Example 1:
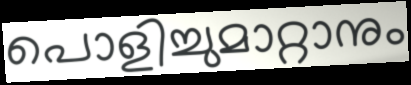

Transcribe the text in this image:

പൊളിച്ചുമാറ്റാനും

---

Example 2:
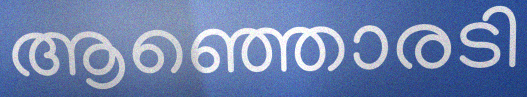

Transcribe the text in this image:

ആഞ്ഞൊരടി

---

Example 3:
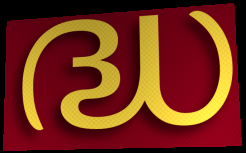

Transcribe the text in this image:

ദ്ധ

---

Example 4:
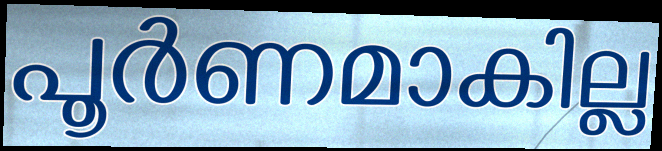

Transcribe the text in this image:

പൂർണമാകില്ല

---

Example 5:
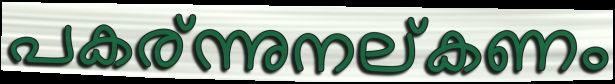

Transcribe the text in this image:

പകര്ന്നുനല്കണം